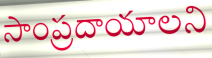
సాంప్రదాయాలని